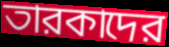
তারকাদের